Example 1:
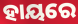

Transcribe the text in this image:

ହାୟରେ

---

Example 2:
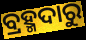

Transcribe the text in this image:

ବ୍ରହ୍ମଦାରୁ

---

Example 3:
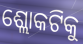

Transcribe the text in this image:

ଶ୍ଲୋକଟିକୁ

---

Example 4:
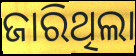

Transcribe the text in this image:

ଜାରିଥିଲା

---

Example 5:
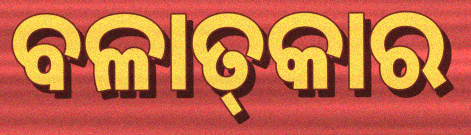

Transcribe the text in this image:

ବଳାତ୍‌କାର